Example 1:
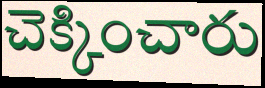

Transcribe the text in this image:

చెక్కించారు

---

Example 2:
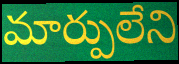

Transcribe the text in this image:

మార్పులేని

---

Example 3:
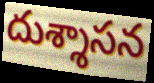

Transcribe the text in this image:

దుశ్శాసన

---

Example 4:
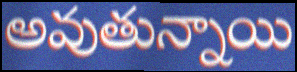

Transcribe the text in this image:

అవుతున్నాయి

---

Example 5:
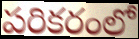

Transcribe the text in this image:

పరికరంలో